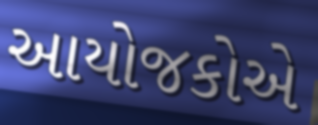
આયોજકોએ